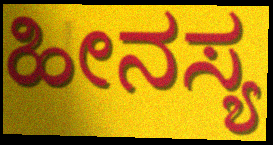
ಹೀನಸ್ಯ